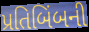
પ્રતિબિંબની